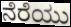
ನೆರೆಯು